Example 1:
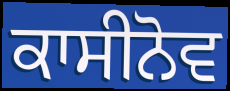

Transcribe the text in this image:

ਕਾਸੀਨੋਵ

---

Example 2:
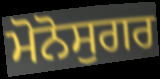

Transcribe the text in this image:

ਮੋਨੋਸੁਗਰ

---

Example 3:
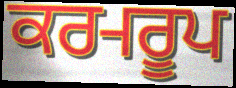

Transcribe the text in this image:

ਕਰ੍ਮਰੂਪ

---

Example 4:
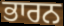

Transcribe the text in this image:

ਭਾਰਨ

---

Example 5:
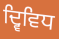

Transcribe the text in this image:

ਦ੍ਵਿਵਿਧ